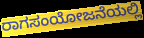
ರಾಗಸಂಯೋಜನೆಯಲ್ಲಿ